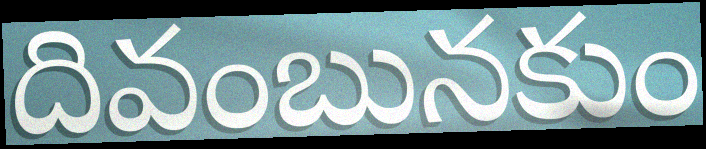
దివంబునకుం